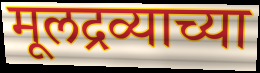
मूलद्रव्याच्या